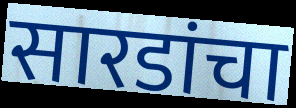
सारडांचा